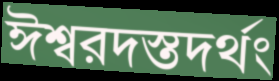
ঈশ্বরদস্তদর্থং